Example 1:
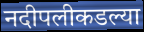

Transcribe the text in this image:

नदीपलीकडल्या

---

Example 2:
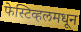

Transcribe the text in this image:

फेस्टिव्हलमधून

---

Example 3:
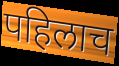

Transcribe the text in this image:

पहिलाच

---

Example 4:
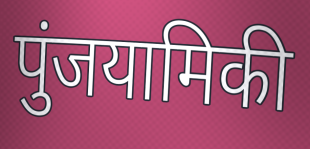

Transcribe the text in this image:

पुंजयामिकी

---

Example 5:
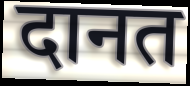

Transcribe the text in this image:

दानत